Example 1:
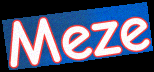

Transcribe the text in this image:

Meze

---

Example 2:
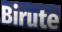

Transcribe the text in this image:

Birute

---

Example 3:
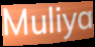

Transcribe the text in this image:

Muliya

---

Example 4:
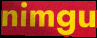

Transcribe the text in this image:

nimgu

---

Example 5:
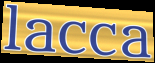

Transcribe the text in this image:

lacca